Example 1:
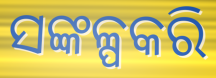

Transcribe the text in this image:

ସଙ୍କଳ୍ପକରି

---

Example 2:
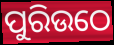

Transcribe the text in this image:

ପୁରିଉଠେ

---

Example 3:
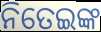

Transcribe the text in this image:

ନିତେଇଙ୍କ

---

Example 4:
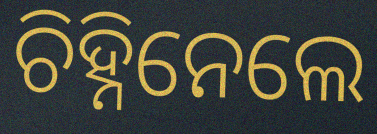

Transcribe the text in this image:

ଚିହ୍ନିନେଲେ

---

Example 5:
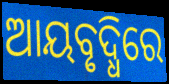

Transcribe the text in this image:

ଆୟବୃଦ୍ଧିରେ